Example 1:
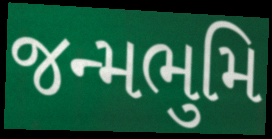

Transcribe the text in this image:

જન્મભુમિ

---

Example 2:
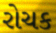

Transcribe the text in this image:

રોચક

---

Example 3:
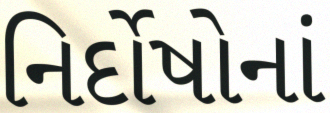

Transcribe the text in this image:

નિર્દોષોનાં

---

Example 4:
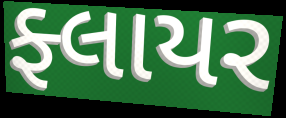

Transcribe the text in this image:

ફ્લાયર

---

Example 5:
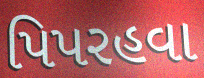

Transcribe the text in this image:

પિપરહવા